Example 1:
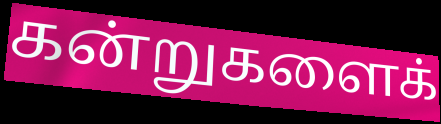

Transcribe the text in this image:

கன்றுகளைக்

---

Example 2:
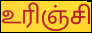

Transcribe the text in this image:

உரிஞ்சி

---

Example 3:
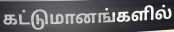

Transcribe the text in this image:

கட்டுமானங்களில்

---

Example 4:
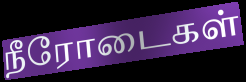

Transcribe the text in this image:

நீரோடைகள்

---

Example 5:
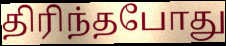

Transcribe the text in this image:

திரிந்தபோது